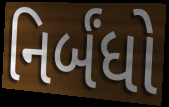
નિર્બંધો